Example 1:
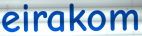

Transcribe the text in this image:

eirakom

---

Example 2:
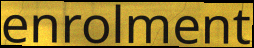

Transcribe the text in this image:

enrolment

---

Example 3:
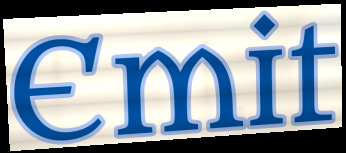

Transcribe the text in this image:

Emit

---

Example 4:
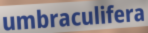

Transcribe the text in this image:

umbraculifera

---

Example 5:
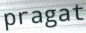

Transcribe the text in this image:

pragat